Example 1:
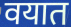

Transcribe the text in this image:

वयात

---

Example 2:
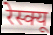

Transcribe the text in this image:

रेस्क्यू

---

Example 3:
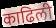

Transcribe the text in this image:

काढिली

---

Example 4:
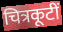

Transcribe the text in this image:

चित्रकूटीं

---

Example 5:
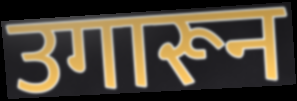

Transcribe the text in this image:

उगारून